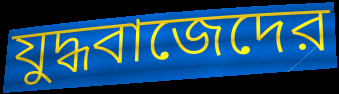
যুদ্ধবাজেদের